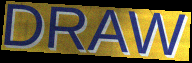
DRAW